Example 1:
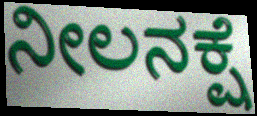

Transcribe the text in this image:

ನೀಲನಕ್ಷೆ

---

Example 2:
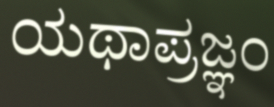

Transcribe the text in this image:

ಯಥಾಪ್ರಜ್ಞಂ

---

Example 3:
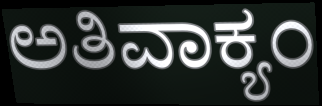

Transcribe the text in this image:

ಅತಿವಾಕ್ಯಂ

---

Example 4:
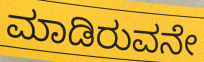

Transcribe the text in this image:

ಮಾಡಿರುವನೇ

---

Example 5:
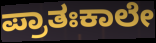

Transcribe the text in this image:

ಪ್ರಾತಃಕಾಲೇ